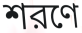
শরণে